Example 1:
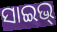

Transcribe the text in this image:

ସାଇଭ୍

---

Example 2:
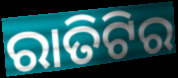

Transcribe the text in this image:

ରାତିଟିର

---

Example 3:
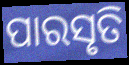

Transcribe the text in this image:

ପାରସୃତି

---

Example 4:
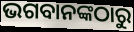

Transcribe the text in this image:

ଭଗବାନଙ୍କଠାରୁ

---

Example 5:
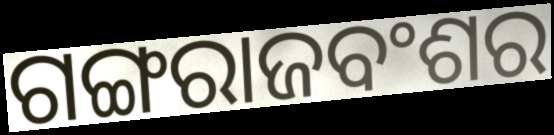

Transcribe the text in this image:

ଗଙ୍ଗରାଜବଂଶର